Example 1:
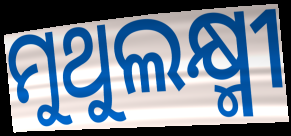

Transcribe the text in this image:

ମୁଥୁଲକ୍ଷ୍ମୀ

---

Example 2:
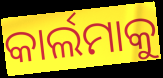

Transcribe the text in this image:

କାର୍ଲମାକୁ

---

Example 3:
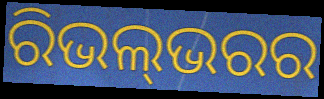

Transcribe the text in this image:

ରିଭଲ୍‍ଭରର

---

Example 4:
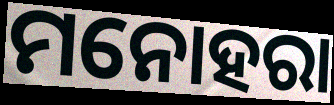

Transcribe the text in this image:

ମନୋହରା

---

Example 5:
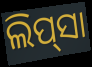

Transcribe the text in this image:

ଲିପ୍‌ସା